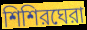
শিশিরঘেরা